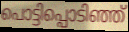
പൊട്ടിപ്പൊടിഞ്ഞ്